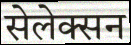
सेलेक्सन